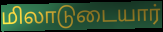
மிலாடுடையார்